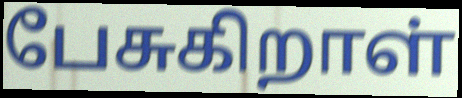
பேசுகிறாள்